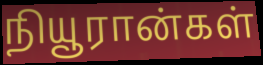
நியூரான்கள்